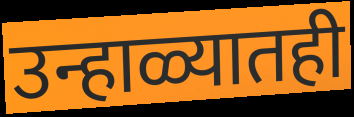
उन्हाळ्यातही